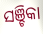
ସଞ୍ଚିକା